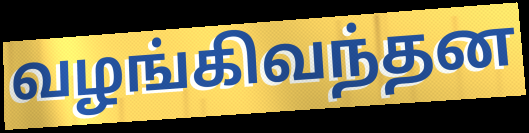
வழங்கிவந்தன